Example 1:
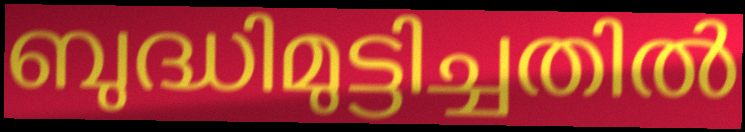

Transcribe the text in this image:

ബുദ്ധിമുട്ടിച്ചതിൽ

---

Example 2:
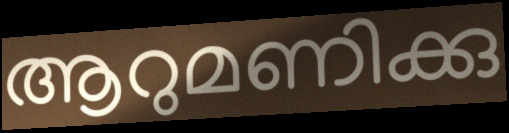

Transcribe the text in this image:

ആറുമണിക്കു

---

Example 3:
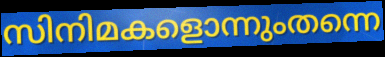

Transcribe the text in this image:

സിനിമകളൊന്നുംതന്നെ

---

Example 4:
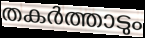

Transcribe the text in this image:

തകർത്താടും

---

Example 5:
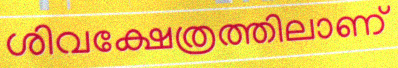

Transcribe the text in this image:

ശിവക്ഷേത്രത്തിലാണ്